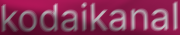
kodaikanal